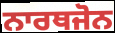
ਨਾਰਥਜੋਨ